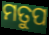
ମତୁପ